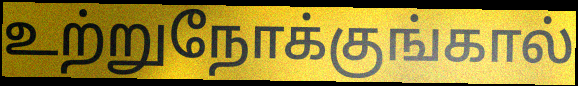
உற்றுநோக்குங்கால்